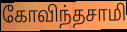
கோவிந்தசாமி